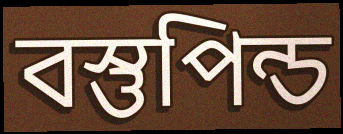
বস্তুপিন্ড